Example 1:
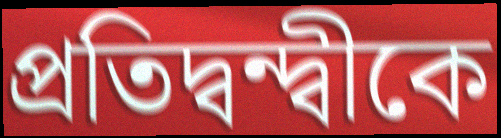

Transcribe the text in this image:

প্রতিদ্বন্দ্বীকে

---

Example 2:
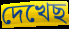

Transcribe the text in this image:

দেখেছ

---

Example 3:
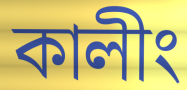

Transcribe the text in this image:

কালীং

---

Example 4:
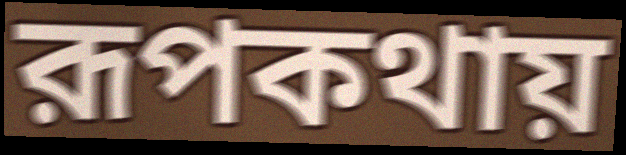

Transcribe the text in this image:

রূপকথায়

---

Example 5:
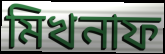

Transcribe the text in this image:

মিখনাফ